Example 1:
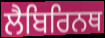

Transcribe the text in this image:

ਲੈਬਿਰਿਨਥ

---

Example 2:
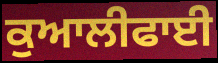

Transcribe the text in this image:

ਕੁਆਲੀਫਾਈ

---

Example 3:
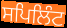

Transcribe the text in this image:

ਸਪਿਲਿੰਟ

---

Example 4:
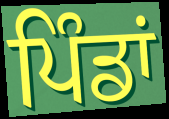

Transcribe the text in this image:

ਪਿੰਡਾਂ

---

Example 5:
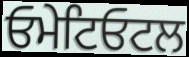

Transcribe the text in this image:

ਓਮੇਟਿਓਟਲ